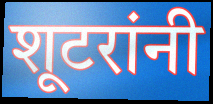
शूटरांनी